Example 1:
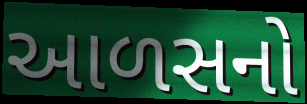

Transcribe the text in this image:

આળસનો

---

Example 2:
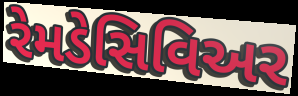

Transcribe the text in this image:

રેમડેસિવિઅર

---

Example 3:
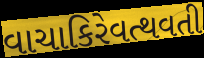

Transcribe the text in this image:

વાચાકિરેવત્થવતી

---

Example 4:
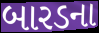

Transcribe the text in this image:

બારડના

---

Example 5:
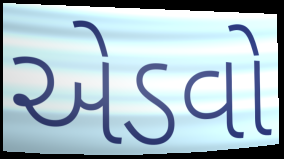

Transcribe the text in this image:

એડવો